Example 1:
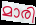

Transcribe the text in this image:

മാരി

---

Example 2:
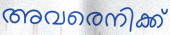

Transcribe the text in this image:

അവരെനിക്ക്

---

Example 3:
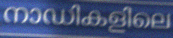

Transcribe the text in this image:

നാഡികളിലെ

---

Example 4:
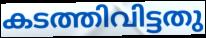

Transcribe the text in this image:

കടത്തിവിട്ടതു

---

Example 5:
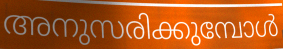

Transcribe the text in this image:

അനുസരിക്കുമ്പോൾ